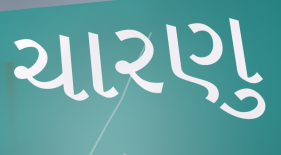
ચારણુ